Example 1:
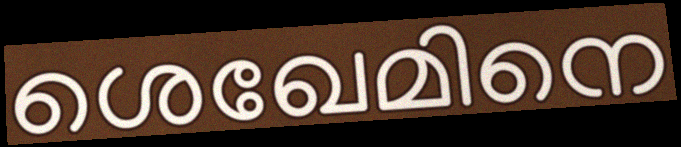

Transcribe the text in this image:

ശെഖേമിനെ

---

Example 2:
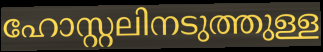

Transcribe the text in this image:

ഹോസ്റ്റലിനടുത്തുള്ള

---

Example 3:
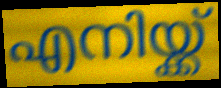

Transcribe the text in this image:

എനിയ്ക്ക്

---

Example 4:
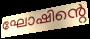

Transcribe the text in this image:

ഘോഷിന്റെ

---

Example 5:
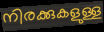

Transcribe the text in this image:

നിരക്കുകളുള്ള